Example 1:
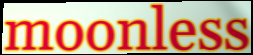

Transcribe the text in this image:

moonless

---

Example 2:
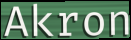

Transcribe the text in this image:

Akron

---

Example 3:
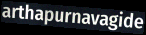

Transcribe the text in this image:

arthapurnavagide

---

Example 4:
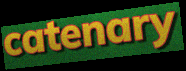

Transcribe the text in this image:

catenary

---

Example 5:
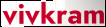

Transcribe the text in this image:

vivkram